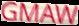
GMAW